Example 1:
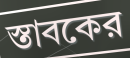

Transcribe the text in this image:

স্তাবকের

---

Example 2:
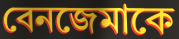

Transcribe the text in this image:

বেনজেমাকে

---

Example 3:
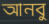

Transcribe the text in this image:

আনবু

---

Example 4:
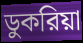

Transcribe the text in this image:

ডুকরিয়া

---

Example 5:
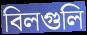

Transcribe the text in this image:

বিলগুলি